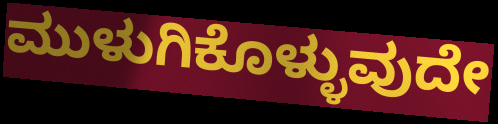
ಮುಳುಗಿಕೊಳ್ಳುವುದೇ